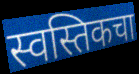
स्वस्तिकचा